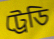
ট্রেডি